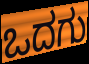
ಒದಗು